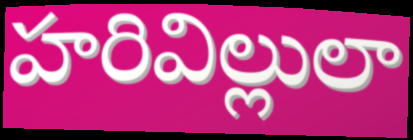
హరివిల్లులా